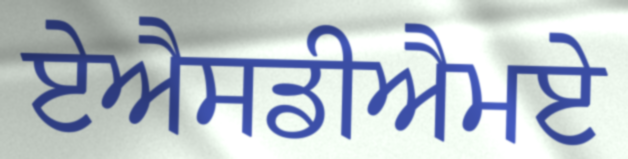
ਏਐਸਡੀਐਮਏ